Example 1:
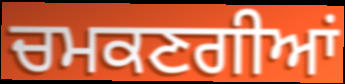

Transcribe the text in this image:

ਚਮਕਣਗੀਆਂ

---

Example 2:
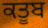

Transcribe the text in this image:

ਕਤੂਬ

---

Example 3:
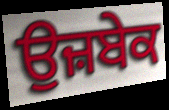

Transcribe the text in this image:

ਉਜ਼ਬੇਕ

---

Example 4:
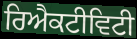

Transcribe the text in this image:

ਰਿਐਕਟੀਵਿਟੀ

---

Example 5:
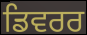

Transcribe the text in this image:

ਡਿਵਰਰ